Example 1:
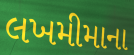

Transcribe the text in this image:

લખમીમાના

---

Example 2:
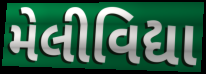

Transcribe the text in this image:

મેલીવિદ્યા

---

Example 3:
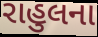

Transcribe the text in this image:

રાહુલના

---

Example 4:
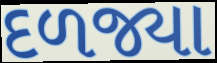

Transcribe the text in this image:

દળજ્યા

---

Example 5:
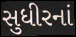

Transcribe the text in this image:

સુધીરનાં